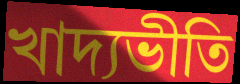
খাদ্যভীতি